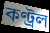
কণ্ট্ৰল